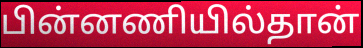
பின்னணியில்தான்